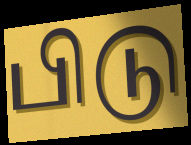
பிடு